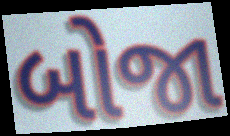
બોજા